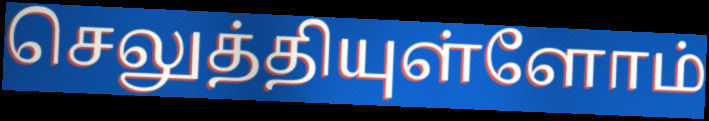
செலுத்தியுள்ளோம்